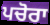
ਪਚੋਰਾ